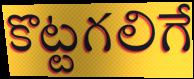
కొట్టగలిగే